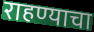
राहण्याचा